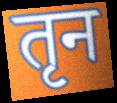
तृन